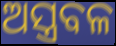
ଅସ୍ତ୍ରବଳ